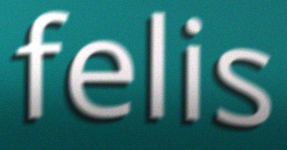
felis